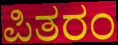
ಪಿತರಂ